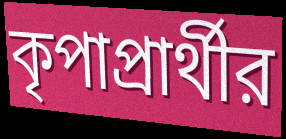
কৃপাপ্রার্থীর